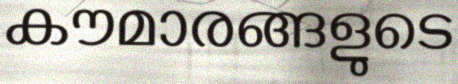
കൗമാരങ്ങളുടെ